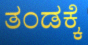
ತಂಡಕ್ಕೆ